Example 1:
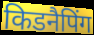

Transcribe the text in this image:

किडनैपिंग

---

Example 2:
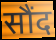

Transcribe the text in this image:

सौंद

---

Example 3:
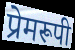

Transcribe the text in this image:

प्रेमरूपी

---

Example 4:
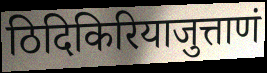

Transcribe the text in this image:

ठिदिकिरियाजुत्ताणं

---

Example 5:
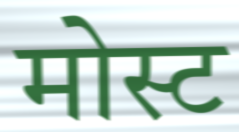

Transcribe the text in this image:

मोस्ट